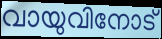
വായുവിനോട്